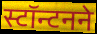
स्टॉन्टनने